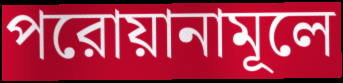
পরোয়ানামূলে